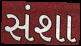
સંશા